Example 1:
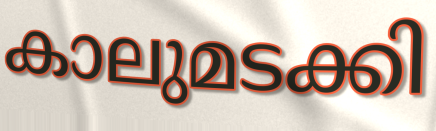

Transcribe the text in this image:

കാലുമടക്കി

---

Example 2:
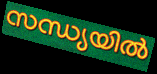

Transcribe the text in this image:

സന്ധ്യയിൽ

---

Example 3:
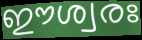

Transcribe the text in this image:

ഈശ്വരഃ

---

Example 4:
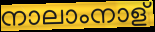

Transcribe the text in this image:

നാലാംനാള്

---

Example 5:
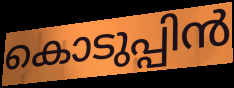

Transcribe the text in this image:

കൊടുപ്പിൻ